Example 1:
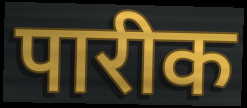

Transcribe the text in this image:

पारीक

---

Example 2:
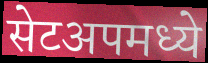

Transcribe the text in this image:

सेटअपमध्ये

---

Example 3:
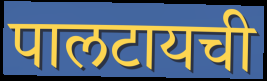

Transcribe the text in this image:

पालटायची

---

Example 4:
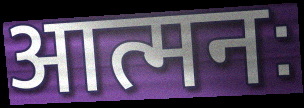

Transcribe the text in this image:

आत्मनः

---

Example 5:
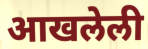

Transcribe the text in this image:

आखलेली